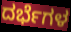
ದರ್ಭೆಗಳ